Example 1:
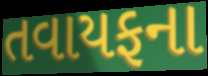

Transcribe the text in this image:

તવાયફના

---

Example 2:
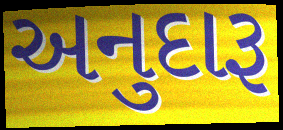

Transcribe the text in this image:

અનુદારૂ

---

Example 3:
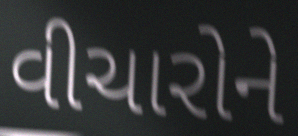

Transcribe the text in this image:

વીચારોને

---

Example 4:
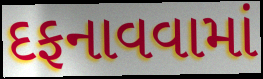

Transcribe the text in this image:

દફનાવવામાં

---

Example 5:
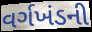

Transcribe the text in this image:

વર્ગખંડની